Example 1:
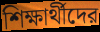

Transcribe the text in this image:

শিক্ষার্থীদের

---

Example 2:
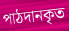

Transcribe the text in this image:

পাঠদানকৃত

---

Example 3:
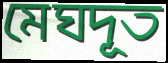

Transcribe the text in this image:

মেঘদূত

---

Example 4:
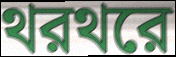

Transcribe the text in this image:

থরথরে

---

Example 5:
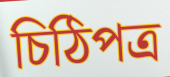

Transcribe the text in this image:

চিঠিপত্র